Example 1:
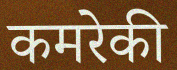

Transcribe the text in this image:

कमरेकी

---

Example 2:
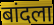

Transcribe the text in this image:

बांदला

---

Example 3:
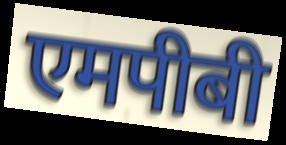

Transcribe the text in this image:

एमपीबी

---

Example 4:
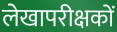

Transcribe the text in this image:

लेखापरीक्षकों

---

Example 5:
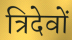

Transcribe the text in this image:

त्रिदेवों